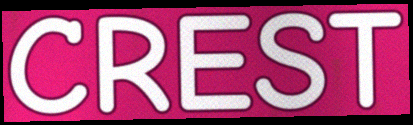
CREST